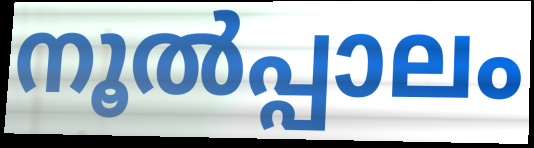
നൂൽപ്പാലം